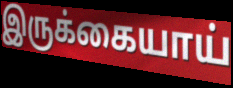
இருக்கையாய்